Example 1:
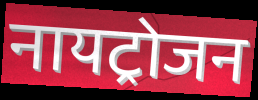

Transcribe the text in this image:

नायट्रोजन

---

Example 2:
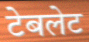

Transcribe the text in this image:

टेबलेट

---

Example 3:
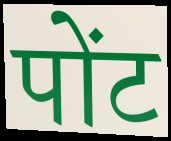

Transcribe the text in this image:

पोंट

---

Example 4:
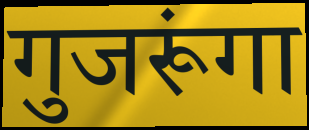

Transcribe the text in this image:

गुजरूंगा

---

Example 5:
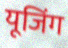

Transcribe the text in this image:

यूजिंग